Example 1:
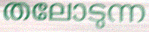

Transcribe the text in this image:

തലോടുന്ന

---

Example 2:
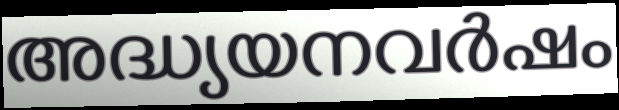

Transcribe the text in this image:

അദ്ധ്യയനവർഷം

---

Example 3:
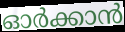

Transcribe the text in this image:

ഓർക്കാൻ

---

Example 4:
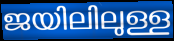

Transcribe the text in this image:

ജയിലിലുള്ള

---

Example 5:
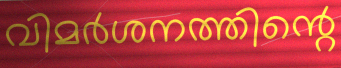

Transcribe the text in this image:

വിമർശനത്തിന്റെ